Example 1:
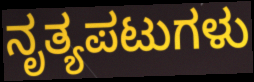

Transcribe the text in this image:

ನೃತ್ಯಪಟುಗಳು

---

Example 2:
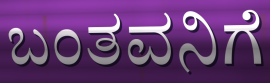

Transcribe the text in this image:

ಬಂತವನಿಗೆ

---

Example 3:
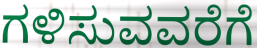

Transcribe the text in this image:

ಗಳಿಸುವವರೆಗೆ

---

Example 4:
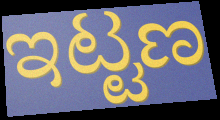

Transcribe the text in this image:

ಇಟ್ಟಣ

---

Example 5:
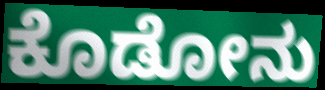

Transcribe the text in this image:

ಕೊಡೋನು